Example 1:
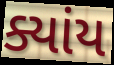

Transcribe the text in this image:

ક્યાંય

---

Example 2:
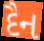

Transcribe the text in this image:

દૈન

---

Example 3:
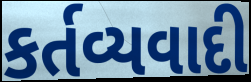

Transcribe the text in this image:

કર્તવ્યવાદી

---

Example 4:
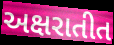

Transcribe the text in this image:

અક્ષરાતીત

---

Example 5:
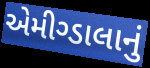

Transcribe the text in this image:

એમીગ્ડાલાનું